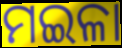
ମଇଳା